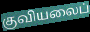
குவியலைப்